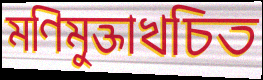
মণিমুক্তাখচিত